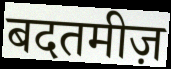
बदतमीज़